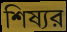
শিষ্যর